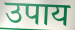
उपाय